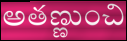
అతణ్ణుంచి